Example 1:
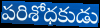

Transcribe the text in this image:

పరిశోధకుడు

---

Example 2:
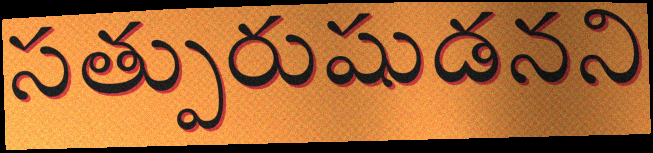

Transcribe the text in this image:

సత్పురుషుడనని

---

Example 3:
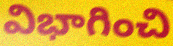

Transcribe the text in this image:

విభాగించి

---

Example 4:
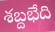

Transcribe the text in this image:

శబ్దభేది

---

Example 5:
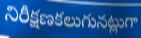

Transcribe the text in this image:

నిరీక్షణకలుగునట్లుగా